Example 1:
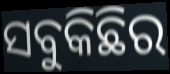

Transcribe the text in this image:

ସବୁକିଛିର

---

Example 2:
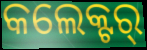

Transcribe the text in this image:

କଲେକ୍ଟର୍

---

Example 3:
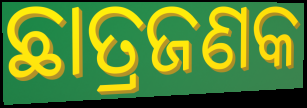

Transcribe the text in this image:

ଛାତ୍ରଜଣକ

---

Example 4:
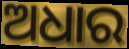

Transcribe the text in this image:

ଅଧାର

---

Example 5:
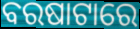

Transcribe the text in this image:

ବରଷାଟାରେ